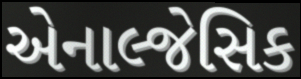
એનાલ્જેસિક